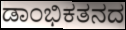
ಡಾಂಭಿಕತನದ